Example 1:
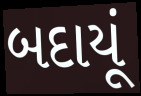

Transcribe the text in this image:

બદાયૂં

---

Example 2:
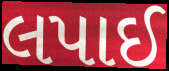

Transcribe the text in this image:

લપાઈ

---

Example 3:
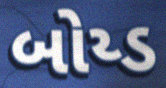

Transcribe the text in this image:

બોય્ડ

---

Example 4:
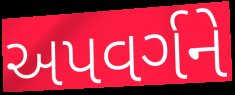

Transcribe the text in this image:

અપવર્ગને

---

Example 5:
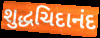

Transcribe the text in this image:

શુદ્ધચિદાનંદ